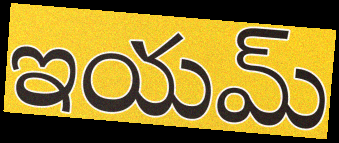
ఇయమ్